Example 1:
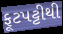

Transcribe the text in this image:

ફૂટપટ્ટીથી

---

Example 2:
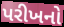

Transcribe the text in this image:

પરીખનો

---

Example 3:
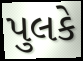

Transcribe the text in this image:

પુલકે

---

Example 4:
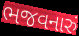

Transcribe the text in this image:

ભજવનારું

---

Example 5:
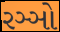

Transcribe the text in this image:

રઞ્ઞો